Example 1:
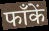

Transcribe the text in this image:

फाँकें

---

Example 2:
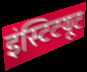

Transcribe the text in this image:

इंस्टिटयूट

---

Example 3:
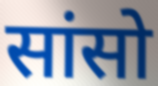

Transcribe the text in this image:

सांसो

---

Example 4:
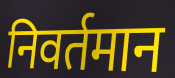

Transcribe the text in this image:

निवर्तमान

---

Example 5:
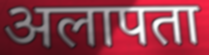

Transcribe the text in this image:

अलापता